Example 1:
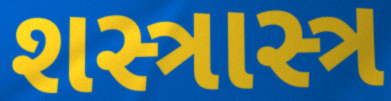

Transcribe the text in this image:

શસ્ત્રાસ્ત્ર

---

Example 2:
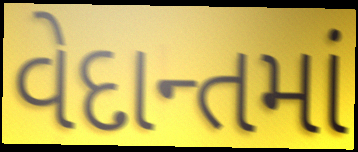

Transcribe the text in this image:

વેદાન્તમાં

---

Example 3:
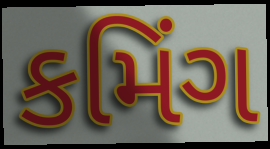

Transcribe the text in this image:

કમિંગ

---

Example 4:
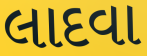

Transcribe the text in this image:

લાદવા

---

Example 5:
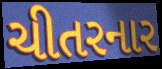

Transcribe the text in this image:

ચીતરનાર